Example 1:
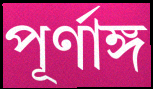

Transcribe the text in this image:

পূর্ণাঙ্গ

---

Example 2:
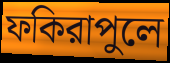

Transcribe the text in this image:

ফকিরাপুলে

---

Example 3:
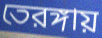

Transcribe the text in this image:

তেরঙ্গায়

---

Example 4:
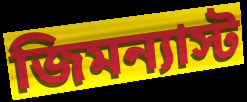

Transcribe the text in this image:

জিমন্যাস্ট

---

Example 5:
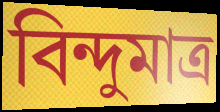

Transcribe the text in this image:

বিন্দুমাত্র